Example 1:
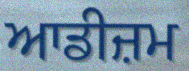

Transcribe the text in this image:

ਆਡੀਜ਼ਮ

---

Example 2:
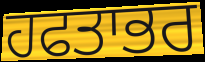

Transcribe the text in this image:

ਹਫਤਾਭਰ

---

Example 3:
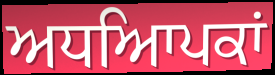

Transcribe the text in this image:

ਅਧਆਿਪਕਾਂ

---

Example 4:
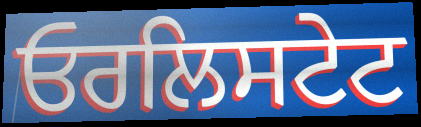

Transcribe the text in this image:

ਓਰਲਿਸਟੇਟ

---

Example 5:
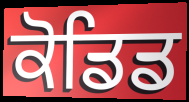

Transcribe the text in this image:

ਕੋਡਿਡ